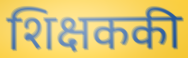
शिक्षककी